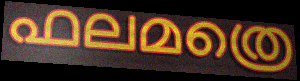
ഫലമത്രെ